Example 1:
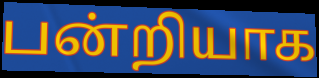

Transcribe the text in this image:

பன்றியாக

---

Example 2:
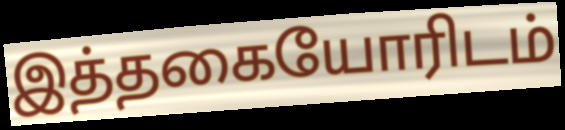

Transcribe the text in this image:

இத்தகையோரிடம்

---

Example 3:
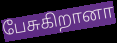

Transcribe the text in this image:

பேசுகிறானா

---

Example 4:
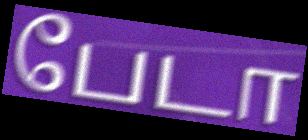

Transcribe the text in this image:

பேடா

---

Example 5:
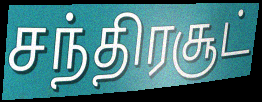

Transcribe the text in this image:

சந்திரசூட்